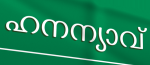
ഹനന്യാവ്